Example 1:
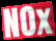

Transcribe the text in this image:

NOx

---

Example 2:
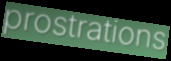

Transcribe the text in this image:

prostrations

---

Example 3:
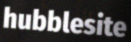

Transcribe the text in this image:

hubblesite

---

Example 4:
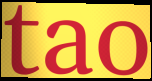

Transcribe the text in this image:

tao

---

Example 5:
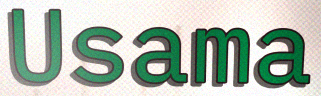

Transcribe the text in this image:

Usama